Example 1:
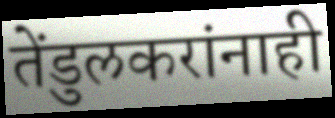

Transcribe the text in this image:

तेंडुलकरांनाही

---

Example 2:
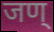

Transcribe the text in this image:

जण्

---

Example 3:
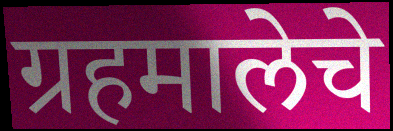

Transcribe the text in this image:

ग्रहमालेचे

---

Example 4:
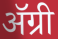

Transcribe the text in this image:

ॲग्री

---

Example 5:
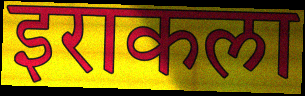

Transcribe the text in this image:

इराकला